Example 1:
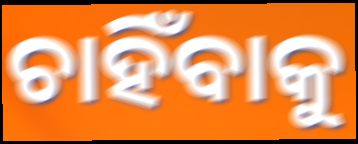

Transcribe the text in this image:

ଚାହିଁବାକୁ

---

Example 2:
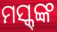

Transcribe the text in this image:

ମସ୍କ୍‌ଙ୍କ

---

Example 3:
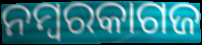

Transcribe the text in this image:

ନମ୍ବରକାଗଜ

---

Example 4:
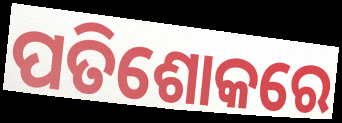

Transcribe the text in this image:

ପତିଶୋକରେ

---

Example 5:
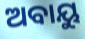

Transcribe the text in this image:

ଅବାୟୁ